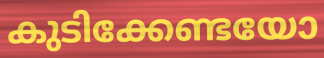
കുടിക്കേണ്ടയോ